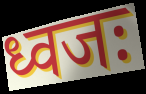
ध्वजः